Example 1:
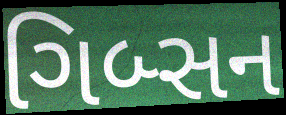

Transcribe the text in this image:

ગિબ્સન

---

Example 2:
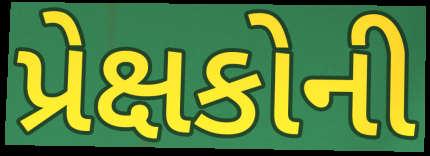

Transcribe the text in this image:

પ્રેક્ષકોની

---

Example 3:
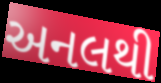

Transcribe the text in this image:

અનલથી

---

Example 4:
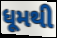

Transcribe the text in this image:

ધૂમથી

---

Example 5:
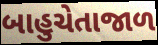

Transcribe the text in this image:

બાહુચેતાજાળ